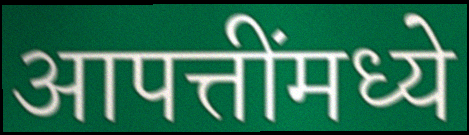
आपत्तींमध्ये